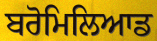
ਬਰੋਮਿਲਿਆਡ